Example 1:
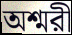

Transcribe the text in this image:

অশ্মরী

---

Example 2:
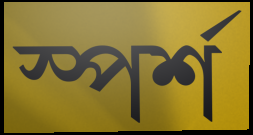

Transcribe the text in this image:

স্পর্শ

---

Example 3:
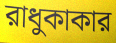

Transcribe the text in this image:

রাধুকাকার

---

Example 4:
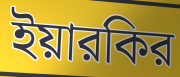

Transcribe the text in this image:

ইয়ারকির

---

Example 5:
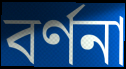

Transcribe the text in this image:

বর্ণনা